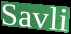
Savli